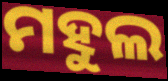
ମହୁଲ